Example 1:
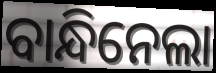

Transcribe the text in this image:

ବାନ୍ଧିନେଲା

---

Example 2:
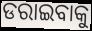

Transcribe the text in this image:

ଡରାଇବାକୁ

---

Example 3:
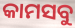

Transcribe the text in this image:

କାମସବୁ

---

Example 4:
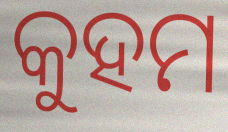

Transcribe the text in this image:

କୁହମ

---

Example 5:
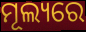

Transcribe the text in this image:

ମୂଲ୍ଯରେ